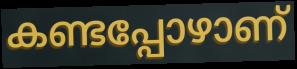
കണ്ടപ്പോഴാണ്